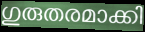
ഗുരുതരമാക്കി